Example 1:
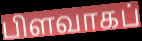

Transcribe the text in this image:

பிளவாகப்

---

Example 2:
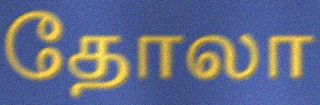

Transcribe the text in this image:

தோலா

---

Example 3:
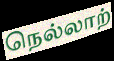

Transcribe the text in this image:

நெல்லாற்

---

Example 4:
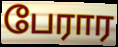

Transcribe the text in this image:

பேரார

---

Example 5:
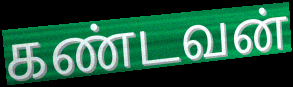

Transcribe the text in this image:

கண்டவன்